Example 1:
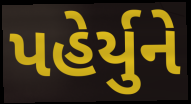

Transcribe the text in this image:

પહેર્યુને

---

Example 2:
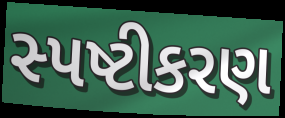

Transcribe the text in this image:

સ્પષ્ટીકરણ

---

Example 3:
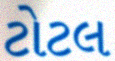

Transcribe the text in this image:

ટોટલ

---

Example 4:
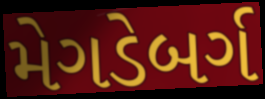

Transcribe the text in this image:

મેગડેબર્ગ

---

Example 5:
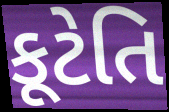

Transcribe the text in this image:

કૂટેતિ